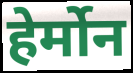
हेर्मोन